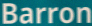
Barron